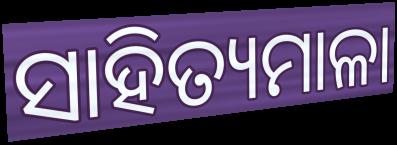
ସାହିତ୍ୟମାଳା